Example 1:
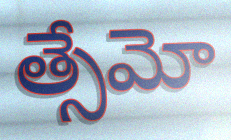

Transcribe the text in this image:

త్సేమో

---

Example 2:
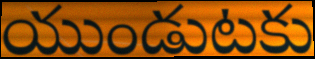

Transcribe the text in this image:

యుండుటకు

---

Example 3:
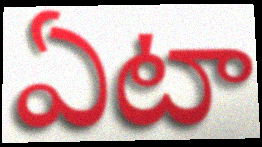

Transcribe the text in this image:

ఏటా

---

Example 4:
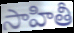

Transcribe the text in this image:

సాహితీ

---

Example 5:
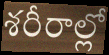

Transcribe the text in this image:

శరీరాల్లో